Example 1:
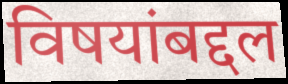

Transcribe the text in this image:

विषयांबद्दल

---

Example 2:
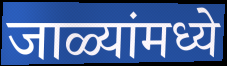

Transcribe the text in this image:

जाळ्यांमध्ये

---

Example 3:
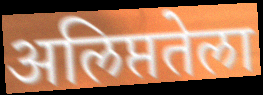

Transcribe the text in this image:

अलिप्ततेला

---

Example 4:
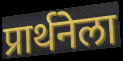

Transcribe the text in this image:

प्रार्थनेला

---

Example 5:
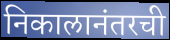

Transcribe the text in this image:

निकालानंतरची